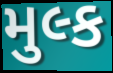
મુલ્ક